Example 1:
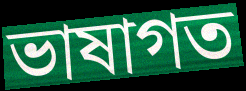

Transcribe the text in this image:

ভাষাগত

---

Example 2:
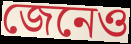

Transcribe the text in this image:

জেনেও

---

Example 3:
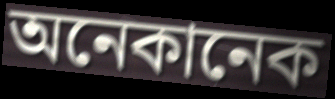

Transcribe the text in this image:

অনেকানেক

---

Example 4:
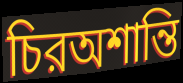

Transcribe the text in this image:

চিরঅশান্তি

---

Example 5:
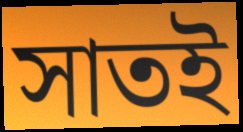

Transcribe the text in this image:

সাতই